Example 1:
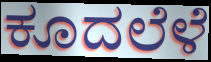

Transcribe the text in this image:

ಕೂದಲೆಳೆ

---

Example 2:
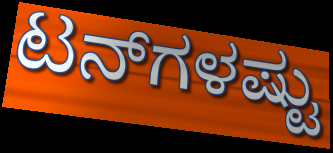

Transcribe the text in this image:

ಟನ್‌ಗಳಷ್ಟು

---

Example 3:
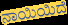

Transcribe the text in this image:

ನಾಯಿಯಿದೆ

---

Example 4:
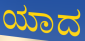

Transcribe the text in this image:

ಯಾದ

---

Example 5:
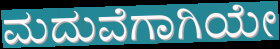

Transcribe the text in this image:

ಮದುವೆಗಾಗಿಯೇ